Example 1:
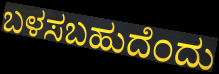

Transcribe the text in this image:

ಬಳಸಬಹುದೆಂದು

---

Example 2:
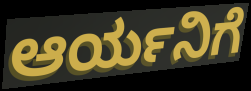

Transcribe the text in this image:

ಆರ್ಯನಿಗೆ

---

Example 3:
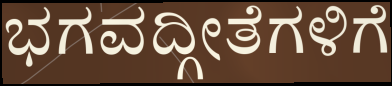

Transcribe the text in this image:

ಭಗವದ್ಗೀತೆಗಳಿಗೆ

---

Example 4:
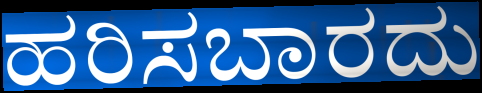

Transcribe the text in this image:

ಹರಿಸಬಾರದು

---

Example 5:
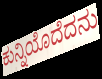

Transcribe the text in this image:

ಕುನ್ನಿಯೊದೆದನು